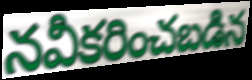
నవీకరించబడిన